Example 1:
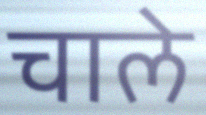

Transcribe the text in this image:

चाले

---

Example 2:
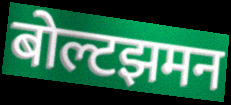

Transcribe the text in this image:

बोल्टझमन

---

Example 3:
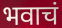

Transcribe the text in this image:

भवाचं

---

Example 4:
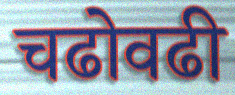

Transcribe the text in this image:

चढोवढी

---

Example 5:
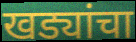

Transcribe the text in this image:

खड्यांचा